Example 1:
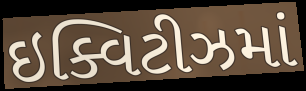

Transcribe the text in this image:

ઇક્વિટીઝમાં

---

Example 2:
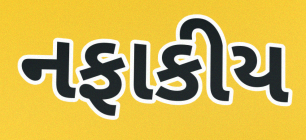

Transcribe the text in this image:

નફાકીય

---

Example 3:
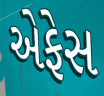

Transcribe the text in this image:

એફેસ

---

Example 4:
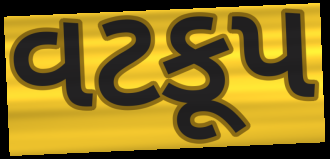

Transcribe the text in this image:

વટકૂપ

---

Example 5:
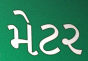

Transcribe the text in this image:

મેટર